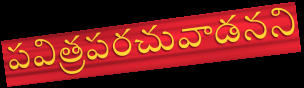
పవిత్రపరచువాడనని